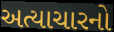
અત્યાચારનો